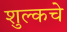
शुल्कचे